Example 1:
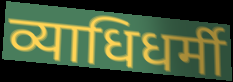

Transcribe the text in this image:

व्याधिधर्मी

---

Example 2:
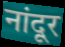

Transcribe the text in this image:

नांदूर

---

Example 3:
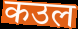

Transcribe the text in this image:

कउल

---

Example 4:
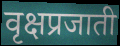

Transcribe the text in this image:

वृक्षप्रजाती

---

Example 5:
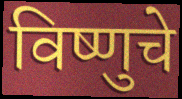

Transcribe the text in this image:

विष्णुचे